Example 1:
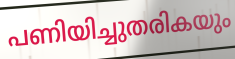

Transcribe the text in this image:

പണിയിച്ചുതരികയും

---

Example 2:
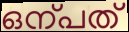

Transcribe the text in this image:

ഒന്പത്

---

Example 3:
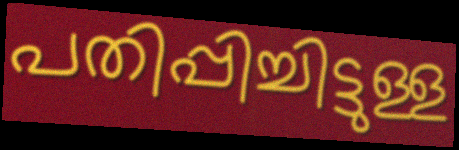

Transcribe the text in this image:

പതിപ്പിച്ചിട്ടുള്ള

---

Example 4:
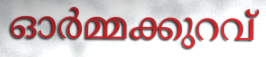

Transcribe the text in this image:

ഓർമ്മക്കുറവ്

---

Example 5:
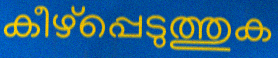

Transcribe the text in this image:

കീഴ്പ്പെടുത്തുക